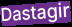
Dastagir